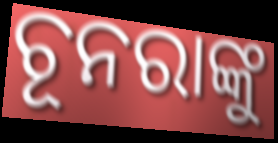
ଚୂନରାଙ୍କୁ